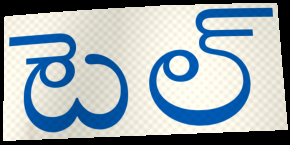
టెల్